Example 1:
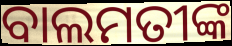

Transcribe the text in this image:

ବାଲମତୀଙ୍କ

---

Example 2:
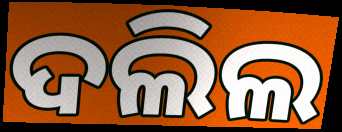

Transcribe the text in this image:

ଦଲିଲ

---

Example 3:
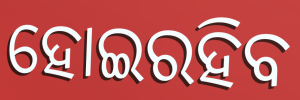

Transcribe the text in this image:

ହୋଇରହିବ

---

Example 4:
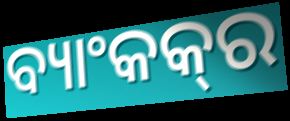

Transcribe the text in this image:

ବ୍ୟାଂକକ୍‍ର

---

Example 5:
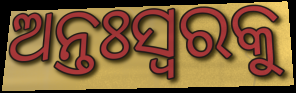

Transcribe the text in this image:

ଅନ୍ତଃସ୍ୱରକୁ